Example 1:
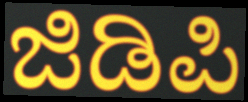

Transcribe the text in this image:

ಜಿಡಿಪಿ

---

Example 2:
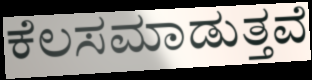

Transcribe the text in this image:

ಕೆಲಸಮಾಡುತ್ತವೆ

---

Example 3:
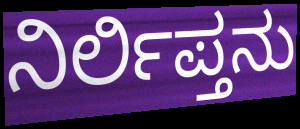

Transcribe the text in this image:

ನಿರ್ಲಿಪ್ತನು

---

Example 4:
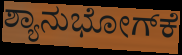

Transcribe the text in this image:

ಶ್ಯಾನುಭೋಗ್‌ಕೆ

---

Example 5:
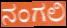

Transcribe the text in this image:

ನಂಗಲಿ